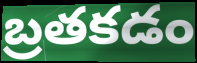
బ్రతకడం